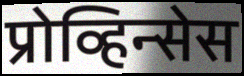
प्रोव्हिन्सेस